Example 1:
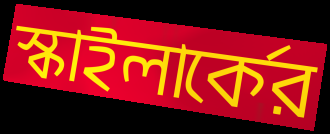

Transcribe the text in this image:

স্কাইলার্কের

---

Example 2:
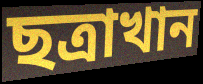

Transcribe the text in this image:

ছত্রাখান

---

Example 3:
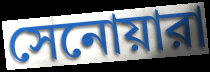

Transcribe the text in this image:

সেনোয়ারা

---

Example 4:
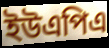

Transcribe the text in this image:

ইউএপিএ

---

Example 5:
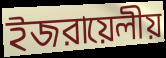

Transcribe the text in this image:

ইজরায়েলীয়